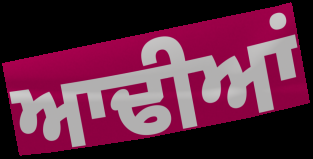
ਆਢੀਆਂ